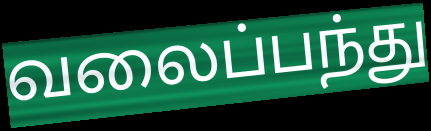
வலைப்பந்து